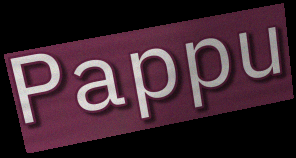
Pappu